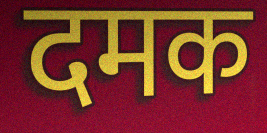
दमक